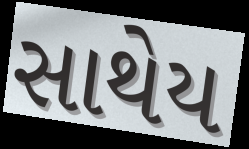
સાથેય